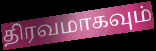
திரவமாகவும்